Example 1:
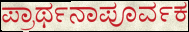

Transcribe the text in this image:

ಪ್ರಾರ್ಥನಾಪೂರ್ವಕ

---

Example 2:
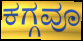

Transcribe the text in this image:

ಕಗ್ಗವೂ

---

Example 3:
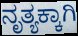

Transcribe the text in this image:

ನೃತ್ಯಕ್ಕಾಗಿ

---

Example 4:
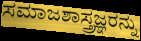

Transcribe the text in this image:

ಸಮಾಜಶಾಸ್ತ್ರಜ್ಞರನ್ನು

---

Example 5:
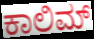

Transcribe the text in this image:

ಕಾಲಿಮ್